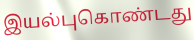
இயல்புகொண்டது